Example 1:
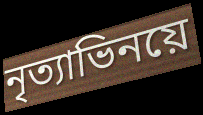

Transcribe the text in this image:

নৃত্যাভিনয়ে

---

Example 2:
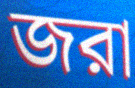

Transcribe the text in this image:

জরা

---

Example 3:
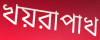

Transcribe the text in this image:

খয়রাপাখ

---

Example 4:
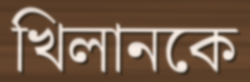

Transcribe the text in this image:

খিলানকে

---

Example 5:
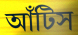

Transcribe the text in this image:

আঁটিস